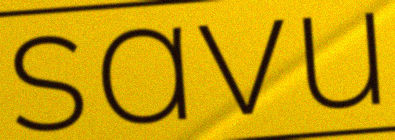
savu